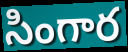
సింగార